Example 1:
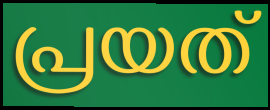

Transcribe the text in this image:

പ്രയത്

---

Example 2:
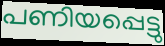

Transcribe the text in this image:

പണിയപ്പെട്ടു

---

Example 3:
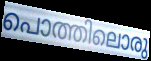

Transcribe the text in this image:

പൊത്തിലൊരു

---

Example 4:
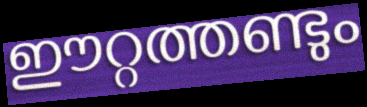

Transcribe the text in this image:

ഈറ്റത്തണ്ടും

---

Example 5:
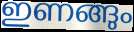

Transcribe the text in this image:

ഇണങ്ങും